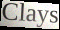
Clays